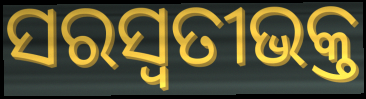
ସରସ୍ୱତୀଭକ୍ତ